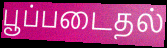
பூப்படைதல்